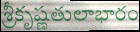
శ్రీకృష్ణతులాభారం